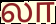
லா